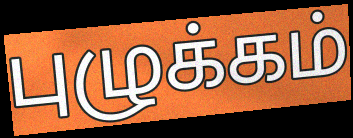
புழுக்கம்